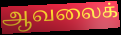
ஆவலைக்